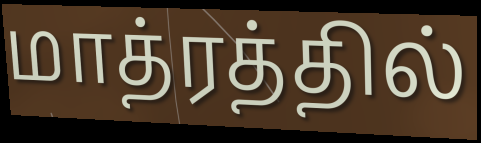
மாத்ரத்தில்